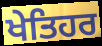
ਖੇਤਿਹਰ